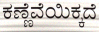
ಕಣ್ಣೆವೆಯಿಕ್ಕದೆ